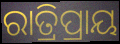
ରାତ୍ରିପ୍ରାୟ